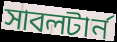
সাবলটার্ন